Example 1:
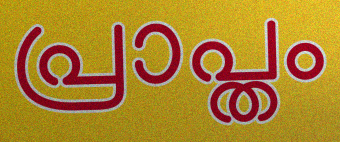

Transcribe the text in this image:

പ്രാപ്തം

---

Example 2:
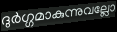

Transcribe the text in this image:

ദുർഗ്ഗമാകുന്നുവല്ലോ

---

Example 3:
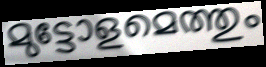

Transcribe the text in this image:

മുട്ടോളമെത്തും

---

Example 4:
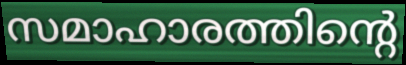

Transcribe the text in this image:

സമാഹാരത്തിന്റെ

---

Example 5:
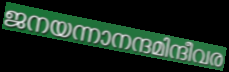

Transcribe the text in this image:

ജനയന്നാനന്ദമിന്ദീവര